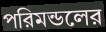
পরিমন্ডলের